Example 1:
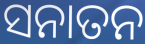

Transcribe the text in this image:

ସନାତନ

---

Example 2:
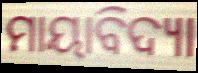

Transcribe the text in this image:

ମାୟାବିଦ୍ୟା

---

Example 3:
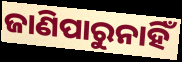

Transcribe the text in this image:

ଜାଣିପାରୁନାହିଁ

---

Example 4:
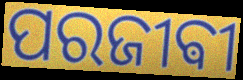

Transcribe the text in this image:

ପରଜୀଵୀ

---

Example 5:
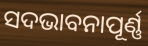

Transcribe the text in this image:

ସଦଭାବନାପୂର୍ଣ୍ଣ